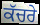
ਕੱਚਰੇ